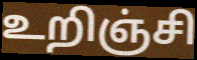
உறிஞ்சி